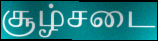
சூழ்சடை